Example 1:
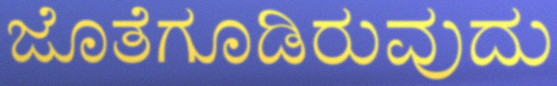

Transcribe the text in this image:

ಜೊತೆಗೂಡಿರುವುದು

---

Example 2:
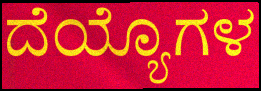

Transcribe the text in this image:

ದೆಯ್ಯೊಗಳ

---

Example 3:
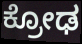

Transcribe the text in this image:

ಕ್ರೋಢ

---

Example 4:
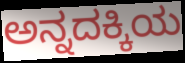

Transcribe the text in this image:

ಅನ್ನದಕ್ಕಿಯ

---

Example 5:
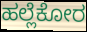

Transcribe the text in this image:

ಹಲ್ಲೆಕೋರ